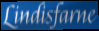
Lindisfarne